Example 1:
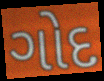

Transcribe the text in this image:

ગોદ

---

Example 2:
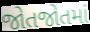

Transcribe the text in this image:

જોતજોતમાં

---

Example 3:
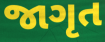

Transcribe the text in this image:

જાગૃત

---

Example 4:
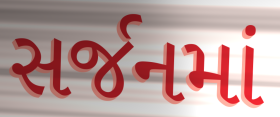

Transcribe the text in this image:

સર્જનમાં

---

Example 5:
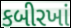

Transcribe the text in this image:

કબીરખાં